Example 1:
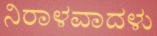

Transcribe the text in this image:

ನಿರಾಳವಾದಳು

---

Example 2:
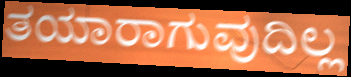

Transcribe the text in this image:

ತಯಾರಾಗುವುದಿಲ್ಲ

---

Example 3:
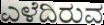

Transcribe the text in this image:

ಎಳೆದಿರುವ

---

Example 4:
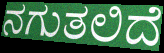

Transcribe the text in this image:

ನಗುತಲಿದೆ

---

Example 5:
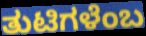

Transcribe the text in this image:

ತುಟಿಗಳೆಂಬ